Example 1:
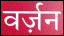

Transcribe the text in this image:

वर्ज़न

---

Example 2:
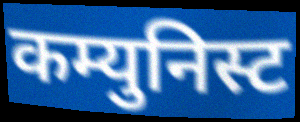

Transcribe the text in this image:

कम्युनिस्ट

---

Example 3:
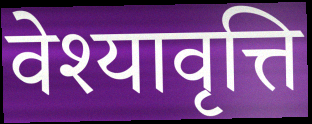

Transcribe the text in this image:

वेश्यावृत्ति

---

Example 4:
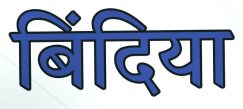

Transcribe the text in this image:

बिंदिया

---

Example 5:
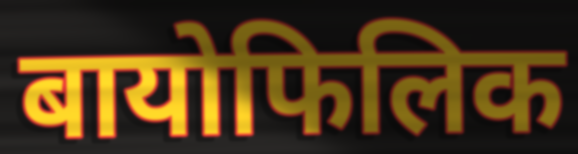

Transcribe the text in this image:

बायोफिलिक